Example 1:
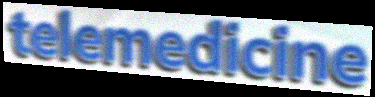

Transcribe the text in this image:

telemedicine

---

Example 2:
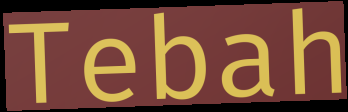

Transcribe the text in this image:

Tebah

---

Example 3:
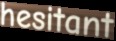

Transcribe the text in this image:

hesitant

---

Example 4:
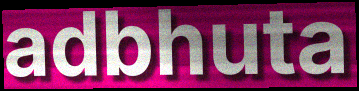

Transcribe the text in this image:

adbhuta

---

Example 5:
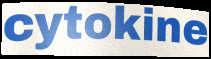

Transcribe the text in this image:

cytokine